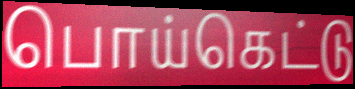
பொய்கெட்டு